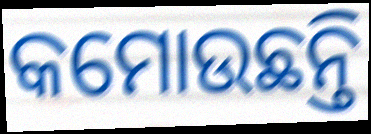
କମୋଉଛନ୍ତି